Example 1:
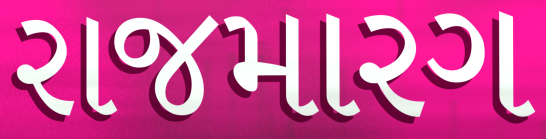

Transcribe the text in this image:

રાજમારગ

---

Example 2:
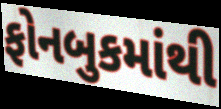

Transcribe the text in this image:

ફોનબુકમાંથી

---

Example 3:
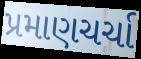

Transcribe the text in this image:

પ્રમાણચર્ચા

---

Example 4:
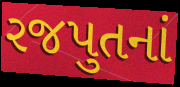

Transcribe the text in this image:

રજપુતનાં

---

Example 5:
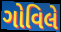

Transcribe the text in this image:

ગોવિલે